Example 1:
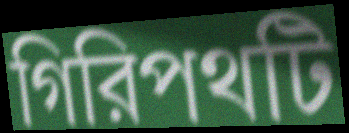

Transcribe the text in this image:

গিরিপথটি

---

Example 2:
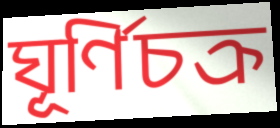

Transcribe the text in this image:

ঘূর্ণিচক্র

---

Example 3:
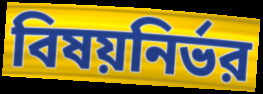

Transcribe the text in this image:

বিষয়নির্ভর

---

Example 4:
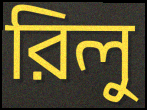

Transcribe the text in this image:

রিলু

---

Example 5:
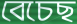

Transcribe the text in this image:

বেচেছ